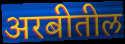
अरबीतील